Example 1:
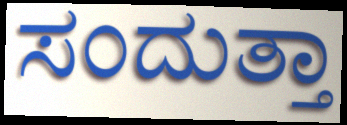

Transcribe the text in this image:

ಸಂದುತ್ತಾ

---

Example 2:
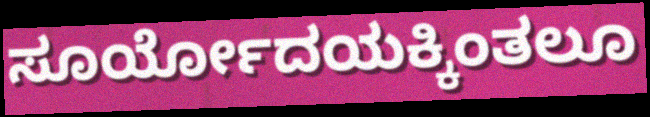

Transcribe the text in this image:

ಸೂರ್ಯೋದಯಕ್ಕಿಂತಲೂ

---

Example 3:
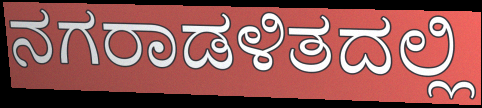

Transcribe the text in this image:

ನಗರಾಡಳಿತದಲ್ಲಿ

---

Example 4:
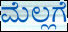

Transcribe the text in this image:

ಮೆಲ್ಲಗೆ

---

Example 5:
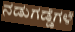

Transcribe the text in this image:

ನಡುಗಡ್ಡೆಗಳೆ